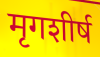
मृगशीर्ष